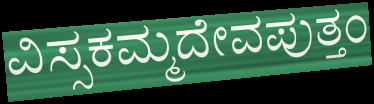
ವಿಸ್ಸಕಮ್ಮದೇವಪುತ್ತಂ